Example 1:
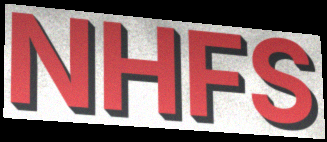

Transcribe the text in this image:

NHFS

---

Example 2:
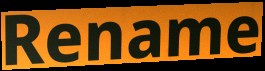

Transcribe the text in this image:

Rename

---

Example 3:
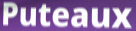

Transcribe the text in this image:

Puteaux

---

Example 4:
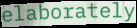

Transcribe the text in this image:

elaborately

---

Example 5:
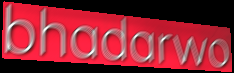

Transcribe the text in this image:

bhadarwo